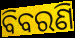
ବିବରଣି